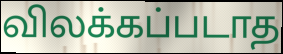
விலக்கப்படாத